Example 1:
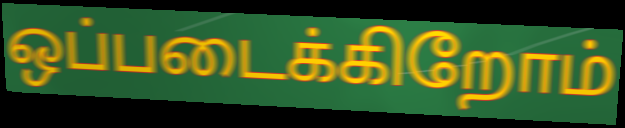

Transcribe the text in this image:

ஒப்படைக்கிறோம்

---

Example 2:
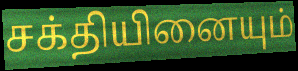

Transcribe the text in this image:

சக்தியினையும்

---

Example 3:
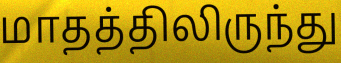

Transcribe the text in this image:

மாதத்திலிருந்து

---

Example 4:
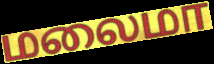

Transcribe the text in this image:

மலைமா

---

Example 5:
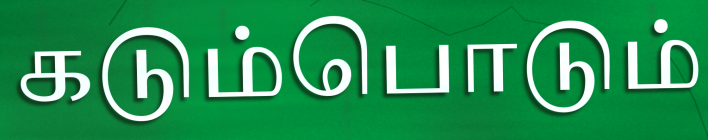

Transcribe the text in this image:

கடும்பொடும்